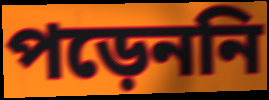
পড়েননি